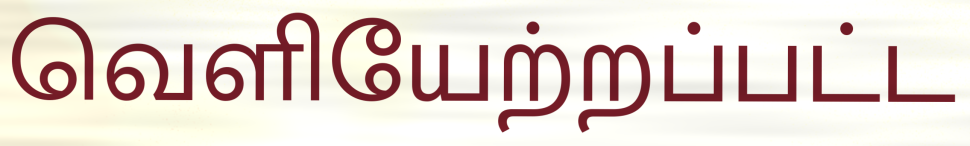
வெளியேற்றப்பட்ட